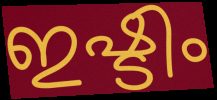
ഇഷ്ടിം